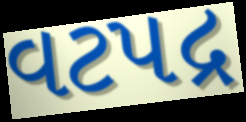
વટપદ્ર